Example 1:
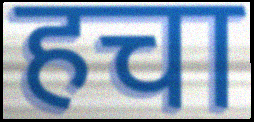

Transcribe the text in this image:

हचा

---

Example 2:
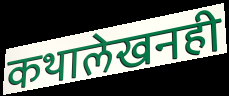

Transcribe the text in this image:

कथालेखनही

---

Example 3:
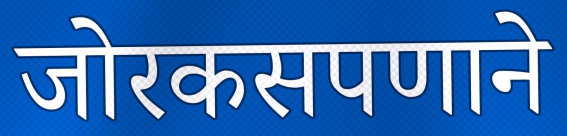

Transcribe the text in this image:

जोरकसपणाने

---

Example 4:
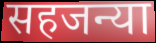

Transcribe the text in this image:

सहजन्या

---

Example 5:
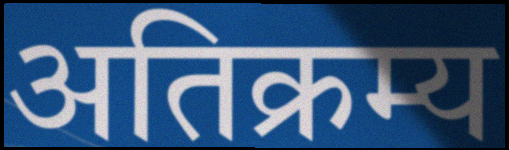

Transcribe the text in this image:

अतिक्रम्य